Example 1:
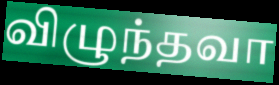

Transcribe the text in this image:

விழுந்தவா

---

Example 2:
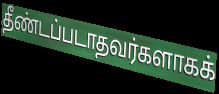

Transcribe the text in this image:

தீண்டப்படாதவர்களாகக்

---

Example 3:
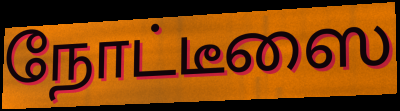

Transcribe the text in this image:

நோட்டீஸை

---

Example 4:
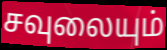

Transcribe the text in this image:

சவுலையும்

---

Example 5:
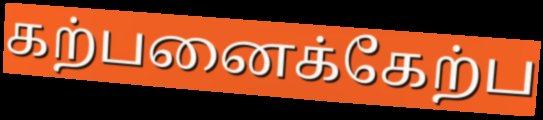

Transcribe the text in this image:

கற்பனைக்கேற்ப